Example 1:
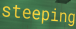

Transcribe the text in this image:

steeping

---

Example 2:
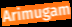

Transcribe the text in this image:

Arimugam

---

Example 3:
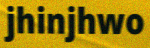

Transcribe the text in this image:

jhinjhwo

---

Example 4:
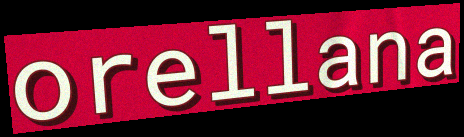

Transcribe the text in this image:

orellana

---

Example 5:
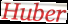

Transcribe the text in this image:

Huber